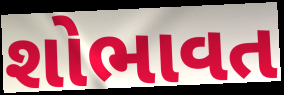
શોભાવત